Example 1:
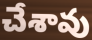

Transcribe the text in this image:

చేశావు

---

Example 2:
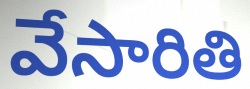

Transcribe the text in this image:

వేసారితి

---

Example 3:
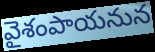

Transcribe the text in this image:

వైశంపాయనున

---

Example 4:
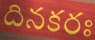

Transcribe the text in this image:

దినకరః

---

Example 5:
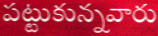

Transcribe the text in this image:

పట్టుకున్నవారు